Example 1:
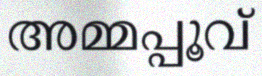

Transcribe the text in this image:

അമ്മപ്പൂവ്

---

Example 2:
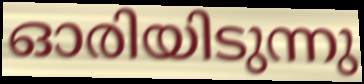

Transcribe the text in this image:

ഓരിയിടുന്നു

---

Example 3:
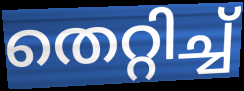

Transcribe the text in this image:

തെറ്റിച്ച്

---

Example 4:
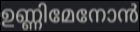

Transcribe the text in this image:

ഉണ്ണിമേനോൻ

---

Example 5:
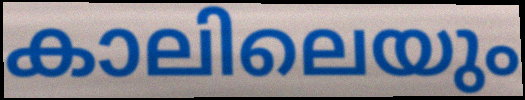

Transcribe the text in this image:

കാലിലെയും